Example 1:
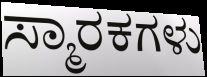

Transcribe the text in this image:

ಸ್ಮಾರಕಗಳು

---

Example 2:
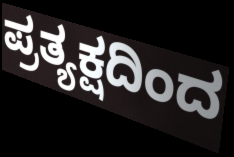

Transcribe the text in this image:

ಪ್ರತ್ಯಕ್ಷದಿಂದ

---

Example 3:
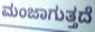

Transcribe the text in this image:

ಮಂಜಾಗುತ್ತದೆ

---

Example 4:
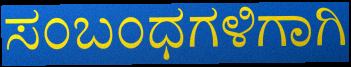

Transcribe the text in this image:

ಸಂಬಂಧಗಳಿಗಾಗಿ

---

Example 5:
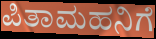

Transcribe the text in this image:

ಪಿತಾಮಹನಿಗೆ